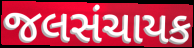
જલસંચાયક